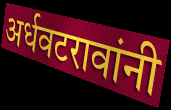
अर्धवटरावांनी